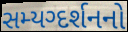
સમ્યગ્દર્શનનો